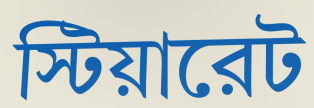
স্টিয়ারেট